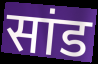
सांड